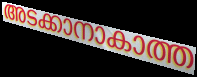
അടക്കാനാകാത്ത